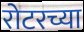
रोटरच्या